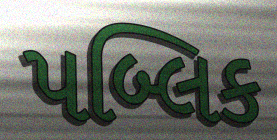
પબ્લિક